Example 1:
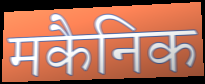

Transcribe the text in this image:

मकैनिक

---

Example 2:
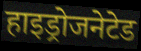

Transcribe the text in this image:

हाइड्रोजनेटेड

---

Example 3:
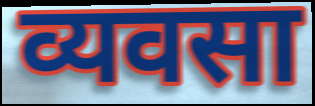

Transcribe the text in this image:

व्यवसा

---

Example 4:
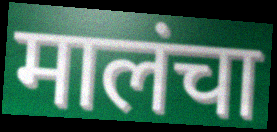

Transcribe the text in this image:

मालंचा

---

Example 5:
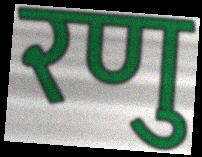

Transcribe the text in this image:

रणु